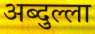
अब्दुल्ला